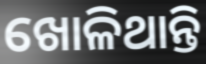
ଖୋଳିଥାନ୍ତି